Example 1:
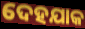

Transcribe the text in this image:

ଦେହଯାକ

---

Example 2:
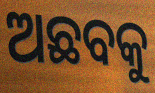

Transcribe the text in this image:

ଅଛବକୁ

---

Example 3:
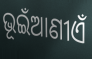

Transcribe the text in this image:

ଭୂଇଁଆଣୀଏଁ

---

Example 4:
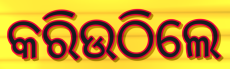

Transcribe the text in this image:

କରିଉଠିଲେ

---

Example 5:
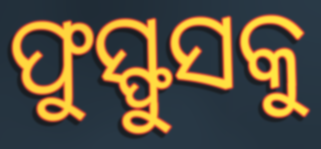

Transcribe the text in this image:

ଫୁସ୍ଫୁସକୁ